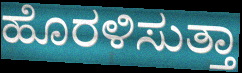
ಹೊರಳಿಸುತ್ತಾ